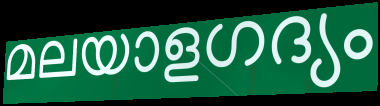
മലയാളഗദ്യം